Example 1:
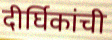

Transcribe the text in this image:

दीर्घिकांची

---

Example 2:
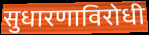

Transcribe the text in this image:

सुधारणाविरोधी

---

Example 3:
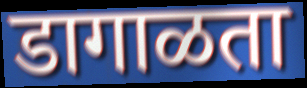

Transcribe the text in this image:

डागाळता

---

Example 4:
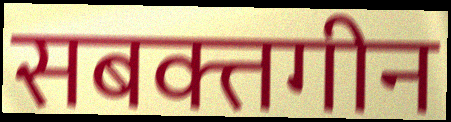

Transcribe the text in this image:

सबक्तगीन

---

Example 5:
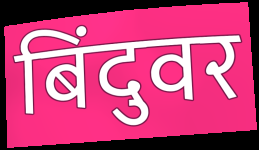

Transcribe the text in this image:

बिंदुवर